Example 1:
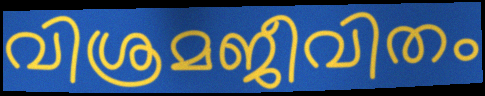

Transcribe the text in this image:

വിശ്രമജീവിതം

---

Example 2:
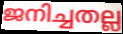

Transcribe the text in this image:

ജനിച്ചതല്ല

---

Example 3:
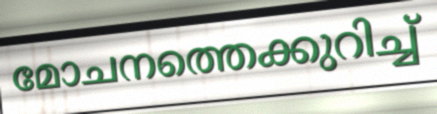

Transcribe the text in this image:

മോചനത്തെക്കുറിച്ച്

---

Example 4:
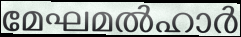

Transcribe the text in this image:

മേഘമൽഹാർ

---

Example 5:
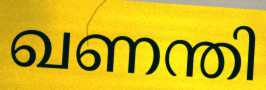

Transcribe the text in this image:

ഖണന്തി